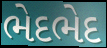
ભેદભેદ